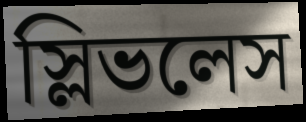
স্লিভলেস